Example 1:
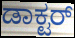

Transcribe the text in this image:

ಡಾಕ್ಟರ್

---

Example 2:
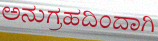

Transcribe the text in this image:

ಅನುಗ್ರಹದಿಂದಾಗಿ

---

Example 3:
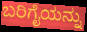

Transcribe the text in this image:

ಬರಿಗೈಯನ್ನು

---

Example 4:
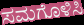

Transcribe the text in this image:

ಸಮಗೊಳಿಸಿ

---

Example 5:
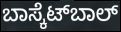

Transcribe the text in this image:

ಬಾಸ್ಕೆಟ್‍ಬಾಲ್